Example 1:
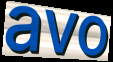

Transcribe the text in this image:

avo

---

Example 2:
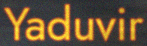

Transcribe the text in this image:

Yaduvir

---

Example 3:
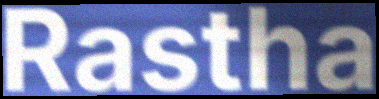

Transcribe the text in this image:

Rastha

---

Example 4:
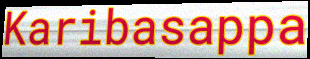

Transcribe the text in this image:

Karibasappa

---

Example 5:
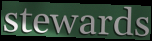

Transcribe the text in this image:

stewards